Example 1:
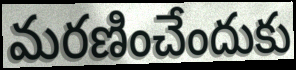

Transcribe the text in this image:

మరణించేందుకు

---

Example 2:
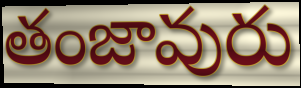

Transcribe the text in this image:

తంజావురు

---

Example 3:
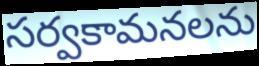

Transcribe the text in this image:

సర్వకామనలను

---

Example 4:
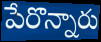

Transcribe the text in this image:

పేరొన్నారు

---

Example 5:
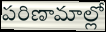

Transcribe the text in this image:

పరిణామాల్లో